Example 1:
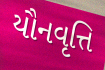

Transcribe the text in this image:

યૌનવૃત્તિ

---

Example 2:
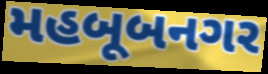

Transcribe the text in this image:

મહબૂબનગર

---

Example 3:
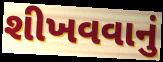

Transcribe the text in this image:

શીખવવાનું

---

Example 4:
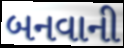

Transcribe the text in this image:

બનવાની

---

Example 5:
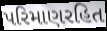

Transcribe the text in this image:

પરિમાણરહિત